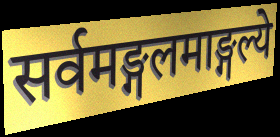
सर्वमङ्गलमाङ्गल्ये